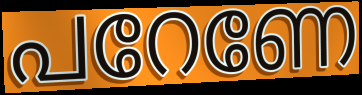
പറേണേ